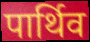
पार्थिव